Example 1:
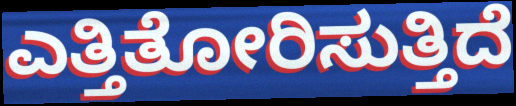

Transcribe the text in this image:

ಎತ್ತಿತೋರಿಸುತ್ತಿದೆ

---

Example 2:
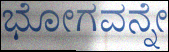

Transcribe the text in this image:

ಭೋಗವನ್ನೇ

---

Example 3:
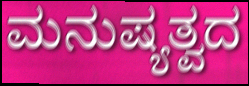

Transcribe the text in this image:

ಮನುಷ್ಯತ್ವದ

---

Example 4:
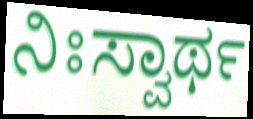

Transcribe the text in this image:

ನಿಃಸ್ವಾರ್ಥ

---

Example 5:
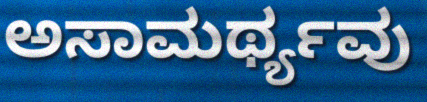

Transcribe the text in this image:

ಅಸಾಮರ್ಥ್ಯವು